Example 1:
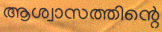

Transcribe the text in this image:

ആശ്വാസത്തിന്റെ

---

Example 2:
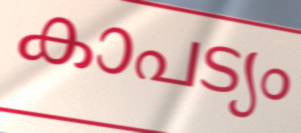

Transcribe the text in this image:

കാപട്യം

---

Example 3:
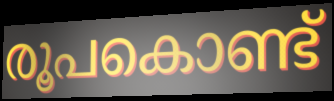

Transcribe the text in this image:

രൂപകൊണ്ട്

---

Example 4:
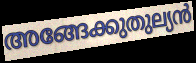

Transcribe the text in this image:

അങ്ങേക്കുതുല്യൻ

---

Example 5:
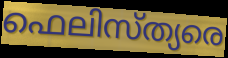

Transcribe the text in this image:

ഫെലിസ്ത്യരെ